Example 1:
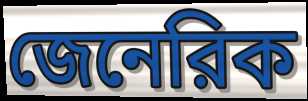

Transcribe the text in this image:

জেনেরিক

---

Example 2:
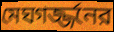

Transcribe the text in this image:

মেঘগর্জ্জনের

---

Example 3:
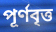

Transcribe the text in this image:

পূর্ণবৃত্ত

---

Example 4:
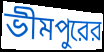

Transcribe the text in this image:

ভীমপুরের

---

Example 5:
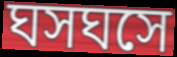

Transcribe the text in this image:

ঘসঘসে